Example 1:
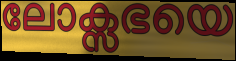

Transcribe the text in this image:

ലോക്സഭയെ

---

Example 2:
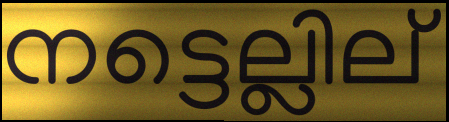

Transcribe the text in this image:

നട്ടെല്ലില്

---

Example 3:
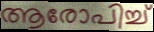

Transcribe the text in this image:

ആരോപിച്ച്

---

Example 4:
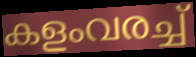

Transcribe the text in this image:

കളംവരച്ച്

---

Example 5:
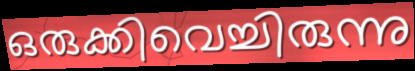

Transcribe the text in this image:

ഒരുക്കിവെച്ചിരുന്നു